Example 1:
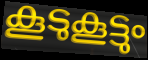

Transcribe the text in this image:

കൂടുകൂട്ടും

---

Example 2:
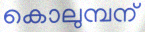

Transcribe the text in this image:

കൊലുമ്പന്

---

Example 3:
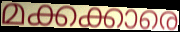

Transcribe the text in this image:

മക്കക്കാരെ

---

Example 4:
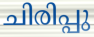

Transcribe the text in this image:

ചിരിപ്പു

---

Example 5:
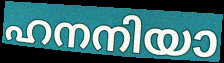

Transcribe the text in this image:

ഹനനിയാ